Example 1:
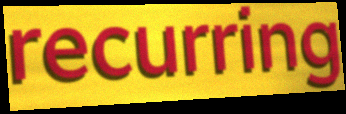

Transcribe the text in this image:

recurring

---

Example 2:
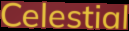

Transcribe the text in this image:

Celestial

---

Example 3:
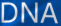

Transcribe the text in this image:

DNA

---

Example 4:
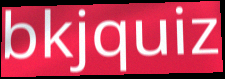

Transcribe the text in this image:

bkjquiz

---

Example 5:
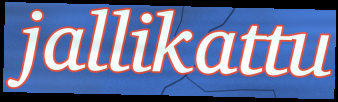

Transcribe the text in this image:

jallikattu